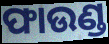
ଫାଉଣ୍ଡ